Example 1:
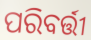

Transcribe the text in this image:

ପରିବର୍ତ୍ତୀ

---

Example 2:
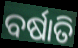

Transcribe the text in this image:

ବର୍ଷାତି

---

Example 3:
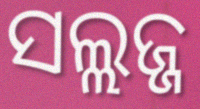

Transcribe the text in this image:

ସଲ୍ଲଜ୍ଜ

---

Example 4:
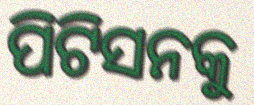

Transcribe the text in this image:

ପିଟିସନକୁ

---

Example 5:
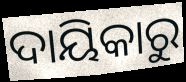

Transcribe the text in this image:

ଦାୟିକାରୁ